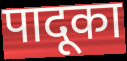
पादूका